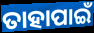
ତାହାପାଇଁ